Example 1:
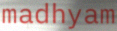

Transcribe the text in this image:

madhyam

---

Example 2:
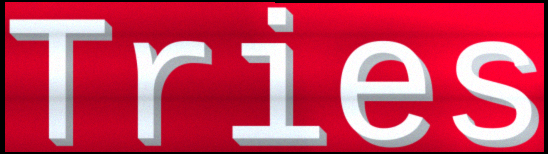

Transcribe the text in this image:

Tries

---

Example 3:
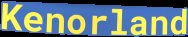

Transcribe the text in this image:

Kenorland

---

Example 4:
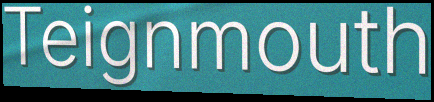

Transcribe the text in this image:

Teignmouth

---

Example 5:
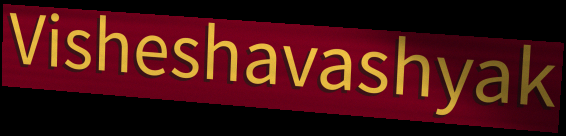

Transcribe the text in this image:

Visheshavashyak